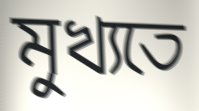
মুখ্যতে